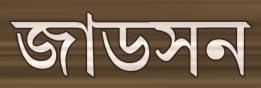
জাডসন